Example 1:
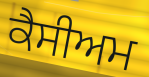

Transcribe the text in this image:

ਕੈਸੀਅਮ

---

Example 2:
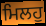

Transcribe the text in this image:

ਮਿਲਹੁ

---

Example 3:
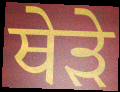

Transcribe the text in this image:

ਥੇੜੇ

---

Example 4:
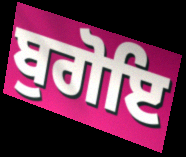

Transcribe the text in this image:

ਬੁਗੋਇ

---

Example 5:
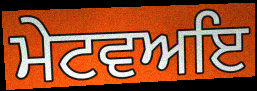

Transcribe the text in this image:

ਮੇਟਵਅਇ